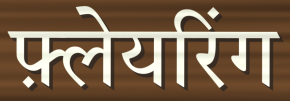
फ़्लेयरिंग